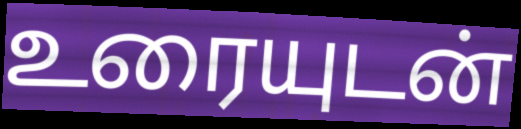
உரையுடன்